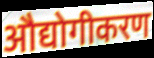
औद्योगीकरण